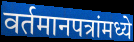
वर्तमानपत्रांमध्ये